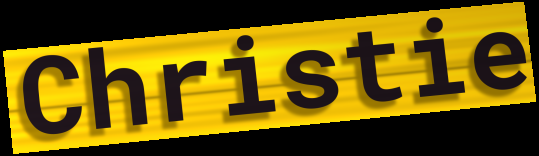
Christie